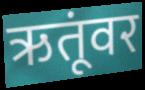
ऋतूंवर